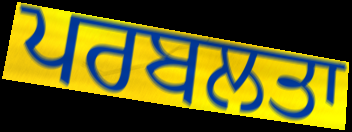
ਪਰਬਲਤਾ